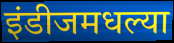
इंडीजमधल्या